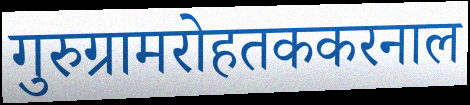
गुरुग्रामरोहतककरनाल